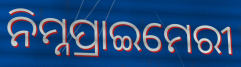
ନିମ୍ନପ୍ରାଇମେରୀ